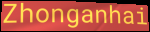
Zhonganhai